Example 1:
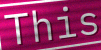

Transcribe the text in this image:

This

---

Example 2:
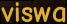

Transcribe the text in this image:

viswa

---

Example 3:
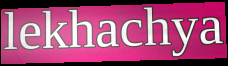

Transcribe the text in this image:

lekhachya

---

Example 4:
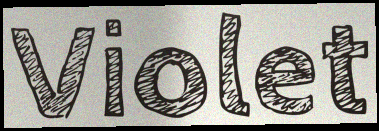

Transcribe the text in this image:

Violet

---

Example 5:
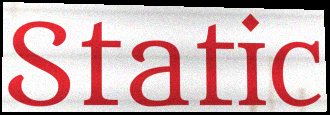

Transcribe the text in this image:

Static